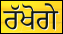
ਰੱਖੋਗੇ